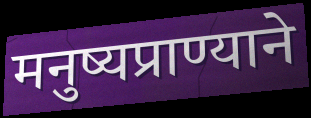
मनुष्यप्राण्याने